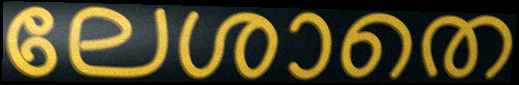
ലേശാതെ